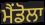
ਮੈਂਡੋਲਾ